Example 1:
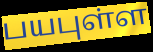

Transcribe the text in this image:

பயபுள்ள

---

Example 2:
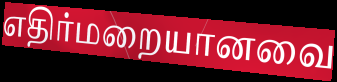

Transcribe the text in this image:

எதிர்மறையானவை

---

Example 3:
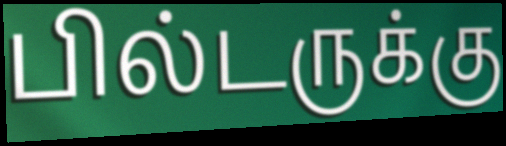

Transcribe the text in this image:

பில்டருக்கு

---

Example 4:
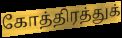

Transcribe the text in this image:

கோத்திரத்துக்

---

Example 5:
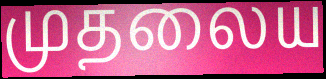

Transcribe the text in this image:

முதலைய